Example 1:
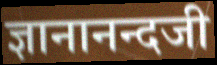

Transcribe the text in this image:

ज्ञानानन्दजी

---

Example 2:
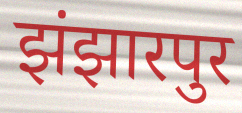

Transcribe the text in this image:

झंझारपुर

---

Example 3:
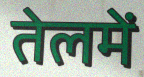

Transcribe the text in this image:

तेलमें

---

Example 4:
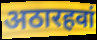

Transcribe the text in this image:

अठारहवां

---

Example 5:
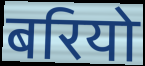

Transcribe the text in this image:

बरियो